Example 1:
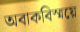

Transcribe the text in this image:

অবাকবিস্ময়ে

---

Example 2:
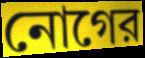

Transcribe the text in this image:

নোগের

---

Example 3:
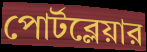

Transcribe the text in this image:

পোর্টব্লেয়ার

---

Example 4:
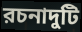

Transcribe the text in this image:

রচনাদুটি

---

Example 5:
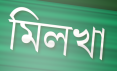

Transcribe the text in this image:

মিলখা